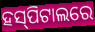
ହସ୍‍ପିଟାଲରେ